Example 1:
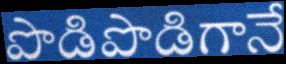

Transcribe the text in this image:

పొడిపొడిగానే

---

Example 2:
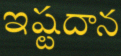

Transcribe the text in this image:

ఇష్టదాన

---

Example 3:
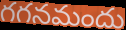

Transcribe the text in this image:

గగనమందు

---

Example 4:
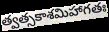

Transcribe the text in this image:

త్వత్సకాశమిహాగతః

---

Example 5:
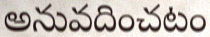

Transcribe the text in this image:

అనువదించటం